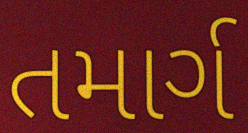
તમાર્ગ